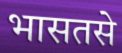
भासतसे